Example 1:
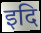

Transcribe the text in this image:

इदि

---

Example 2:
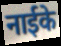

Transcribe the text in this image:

नाईके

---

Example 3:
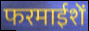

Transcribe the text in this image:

फरमाईशें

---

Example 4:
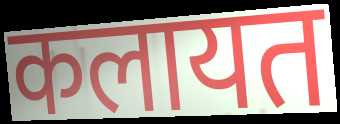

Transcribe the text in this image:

कलायत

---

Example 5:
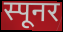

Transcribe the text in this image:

स्पूनर